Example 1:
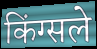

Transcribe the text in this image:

किंग्सले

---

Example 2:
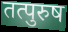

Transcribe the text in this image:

तत्पुरुष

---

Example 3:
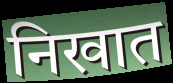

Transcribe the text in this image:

निखात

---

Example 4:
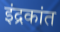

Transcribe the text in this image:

इंद्रकांत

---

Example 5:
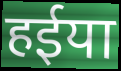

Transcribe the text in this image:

हईया